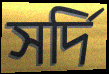
সর্দি